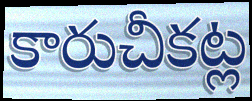
కారుచీకట్ల